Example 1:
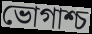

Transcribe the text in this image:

ভোগাশ্চ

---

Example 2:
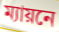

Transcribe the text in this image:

ম্যায়নে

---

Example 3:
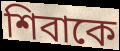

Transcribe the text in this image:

শিবাকে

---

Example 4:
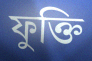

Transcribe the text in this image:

ফুক্তি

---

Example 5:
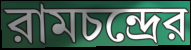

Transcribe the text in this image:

রামচন্দ্রের